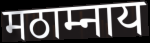
मठाम्नाय